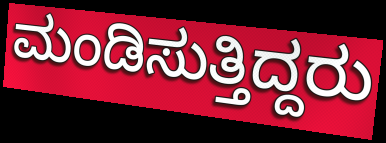
ಮಂಡಿಸುತ್ತಿದ್ದರು